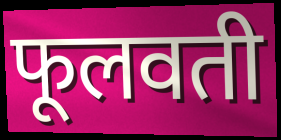
फूलवती